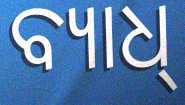
ବ୍ୟାଧ୍